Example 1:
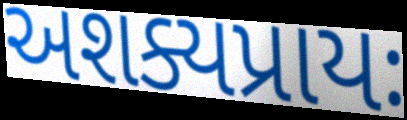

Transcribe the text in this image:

અશક્યપ્રાયઃ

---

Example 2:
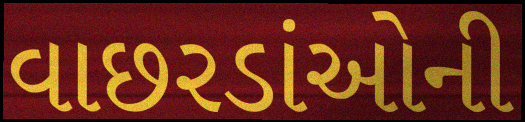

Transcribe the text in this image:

વાછરડાંઓની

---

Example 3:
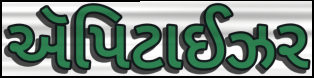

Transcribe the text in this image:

ઍપિટાઈઝર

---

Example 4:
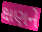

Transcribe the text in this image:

ક્ષણને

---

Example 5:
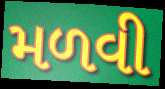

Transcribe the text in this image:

મળવી